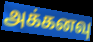
அக்கனவு